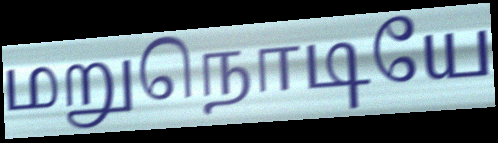
மறுநொடியே